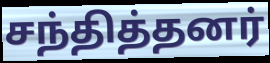
சந்தித்தனர்